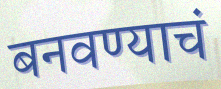
बनवण्याचं